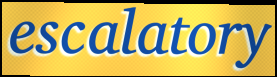
escalatory